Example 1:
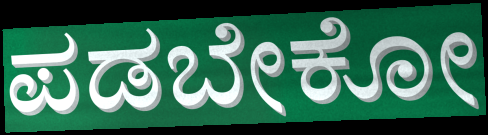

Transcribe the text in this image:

ಪಡಬೇಕೋ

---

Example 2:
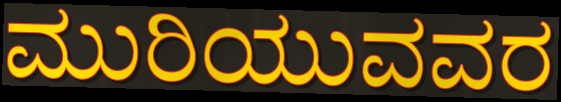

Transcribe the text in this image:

ಮುರಿಯುವವರ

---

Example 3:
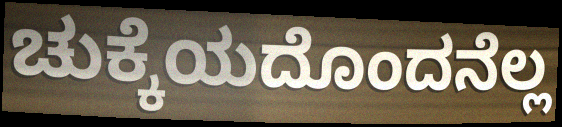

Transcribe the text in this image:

ಚುಕ್ಕೆಯದೊಂದನೆಲ್ಲ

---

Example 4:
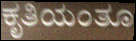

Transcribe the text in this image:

ಕೃತಿಯಂತೂ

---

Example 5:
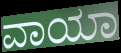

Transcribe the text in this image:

ವಾಯಾ